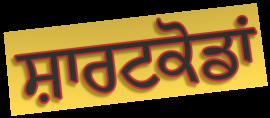
ਸ਼ਾਰਟਕੋਡਾਂ